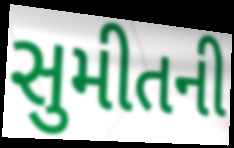
સુમીતની